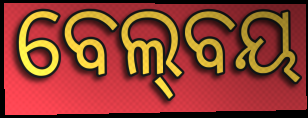
ବେଲ୍‍ବୟ